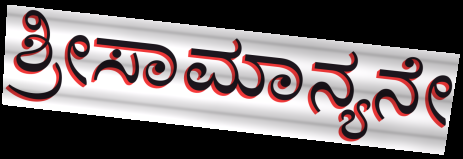
ಶ್ರೀಸಾಮಾನ್ಯನೇ